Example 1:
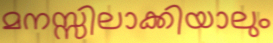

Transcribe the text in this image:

മനസ്സിലാക്കിയാലും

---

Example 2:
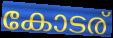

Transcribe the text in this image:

കോടര്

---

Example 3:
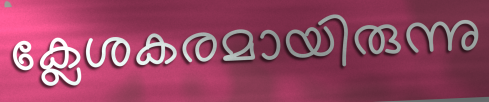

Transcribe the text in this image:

ക്ലേശകരമായിരുന്നു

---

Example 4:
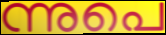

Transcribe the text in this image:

ന്നുപെ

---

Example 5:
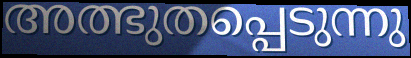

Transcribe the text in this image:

അത്ഭുതപ്പെടുന്നു